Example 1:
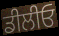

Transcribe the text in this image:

ਡੀਲੀਓ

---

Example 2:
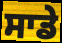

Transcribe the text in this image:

ਸਾਡੇ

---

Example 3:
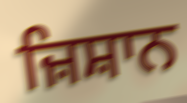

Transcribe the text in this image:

ਜ਼ਿਸ਼ਾਨ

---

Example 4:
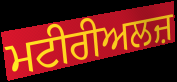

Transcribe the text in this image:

ਮਟੀਰੀਅਲਜ਼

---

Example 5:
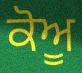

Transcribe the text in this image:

ਕੋਅੂ